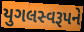
યુગલસ્વરૂપને